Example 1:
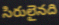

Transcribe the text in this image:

సిరులైనది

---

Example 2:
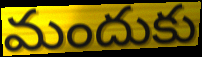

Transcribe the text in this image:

మందుకు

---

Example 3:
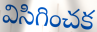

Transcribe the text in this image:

విసిగించక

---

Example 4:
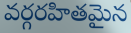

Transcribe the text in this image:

వర్గరహితమైన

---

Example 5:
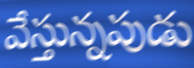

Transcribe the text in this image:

వేస్తున్నపుడు